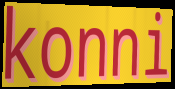
konni